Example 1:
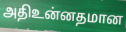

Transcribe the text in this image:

அதிஉன்னதமான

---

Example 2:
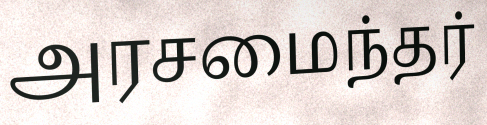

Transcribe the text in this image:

அரசமைந்தர்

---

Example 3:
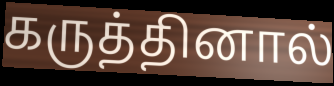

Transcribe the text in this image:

கருத்தினால்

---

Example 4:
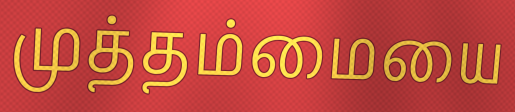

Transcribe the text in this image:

முத்தம்மையை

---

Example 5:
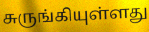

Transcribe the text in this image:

சுருங்கியுள்ளது